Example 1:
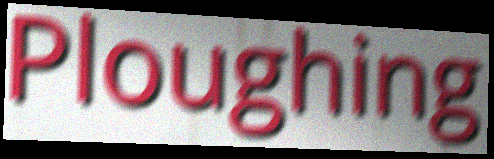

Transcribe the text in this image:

Ploughing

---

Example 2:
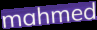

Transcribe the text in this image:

mahmed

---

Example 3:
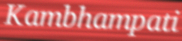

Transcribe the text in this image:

Kambhampati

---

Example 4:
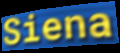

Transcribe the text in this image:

Siena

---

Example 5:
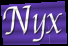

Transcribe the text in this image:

Nyx